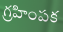
గ్రహింపక